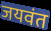
जयवंत